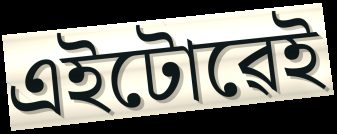
এইটোৱেই